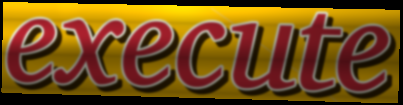
execute